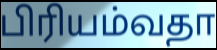
பிரியம்வதா